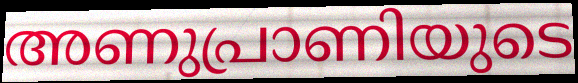
അണുപ്രാണിയുടെ